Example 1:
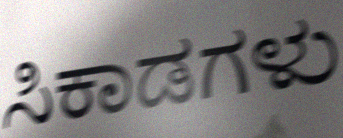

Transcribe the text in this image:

ಸಿಕಾಡಗಳು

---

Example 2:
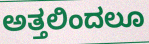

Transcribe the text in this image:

ಅತ್ತಲಿಂದಲೂ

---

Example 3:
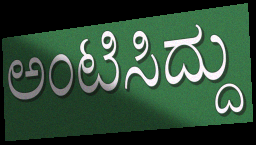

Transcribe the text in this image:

ಅಂಟಿಸಿದ್ದು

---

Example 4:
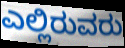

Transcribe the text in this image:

ಎಲ್ಲಿರುವರು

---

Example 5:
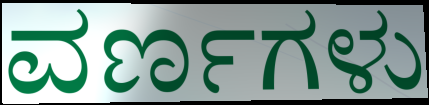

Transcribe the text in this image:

ವರ್ಣಗಳು